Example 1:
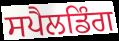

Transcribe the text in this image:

ਸਪੈਲਡਿੰਗ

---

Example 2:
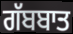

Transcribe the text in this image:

ਗੱਬਬਾਤ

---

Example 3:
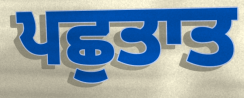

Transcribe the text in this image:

ਪਛੁਤਾਤ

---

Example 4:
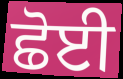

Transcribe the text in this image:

ਛੋਈ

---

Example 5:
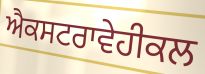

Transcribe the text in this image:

ਐਕਸਟਰਾਵੇਹੀਕਲ